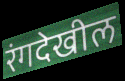
रंगदेखील